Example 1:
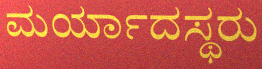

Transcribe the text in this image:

ಮರ್ಯಾದಸ್ಥರು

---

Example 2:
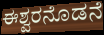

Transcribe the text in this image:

ಈಶ್ವರನೊಡನೆ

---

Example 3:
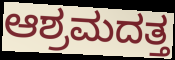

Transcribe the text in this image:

ಆಶ್ರಮದತ್ತ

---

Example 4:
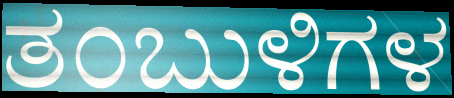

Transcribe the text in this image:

ತಂಬುಳಿಗಳ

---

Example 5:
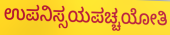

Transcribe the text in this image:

ಉಪನಿಸ್ಸಯಪಚ್ಚಯೋತಿ